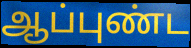
ஆப்புண்ட